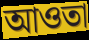
আওতা